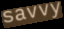
savvy